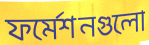
ফর্মেশনগুলো